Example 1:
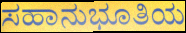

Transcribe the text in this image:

ಸಹಾನುಭೂತಿಯ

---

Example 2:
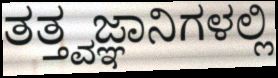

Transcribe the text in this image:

ತತ್ತ್ವಜ್ಞಾನಿಗಳಲ್ಲಿ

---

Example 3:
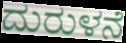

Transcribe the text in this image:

ದುರುಳನೆ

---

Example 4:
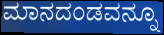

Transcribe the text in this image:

ಮಾನದಂಡವನ್ನೂ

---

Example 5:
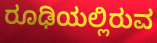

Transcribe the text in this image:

ರೂಢಿಯಲ್ಲಿರುವ